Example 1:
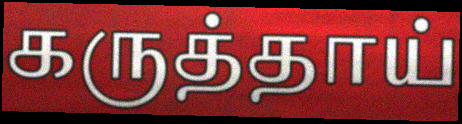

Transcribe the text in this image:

கருத்தாய்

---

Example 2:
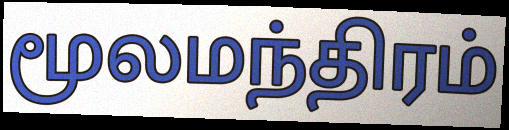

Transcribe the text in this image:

மூலமந்திரம்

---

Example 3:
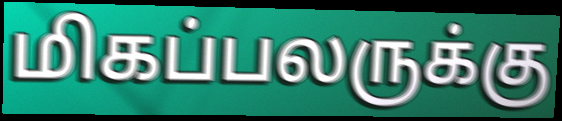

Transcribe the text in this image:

மிகப்பலருக்கு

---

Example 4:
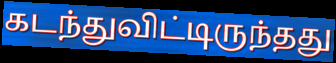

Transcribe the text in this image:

கடந்துவிட்டிருந்தது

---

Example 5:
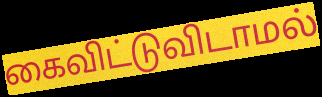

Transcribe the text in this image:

கைவிட்டுவிடாமல்